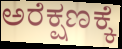
ಅರೆಕ್ಷಣಕ್ಕೆ